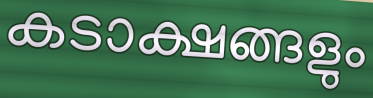
കടാക്ഷങ്ങളും